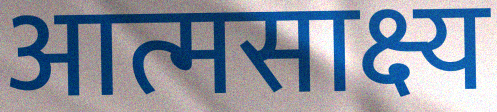
आत्मसाक्ष्य